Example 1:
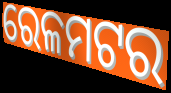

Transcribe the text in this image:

ରେଳମଟର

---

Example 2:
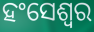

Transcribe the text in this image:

ହଂସେଶ୍ୱର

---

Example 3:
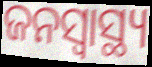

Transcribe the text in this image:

ଜନସ୍ୱାସ୍ଥ୍ୟ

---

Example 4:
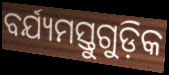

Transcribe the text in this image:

ବର୍ଯ୍ୟମସ୍ତୁଗୁଡ଼ିକ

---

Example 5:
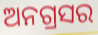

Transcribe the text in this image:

ଅନଗ୍ରସର